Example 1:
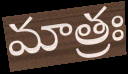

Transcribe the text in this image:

మాత్రః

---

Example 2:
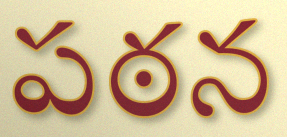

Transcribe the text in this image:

పఠన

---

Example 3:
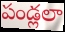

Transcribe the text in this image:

పండ్లలా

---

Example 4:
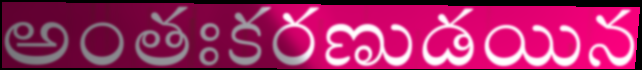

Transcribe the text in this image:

అంతఃకరణుడయిన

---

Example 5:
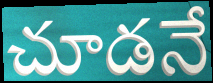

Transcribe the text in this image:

చూడనే